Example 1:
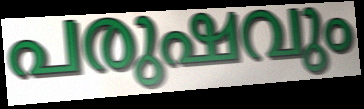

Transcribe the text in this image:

പരുഷവും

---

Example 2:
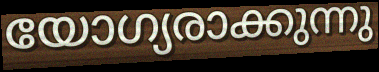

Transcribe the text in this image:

യോഗ്യരാക്കുന്നു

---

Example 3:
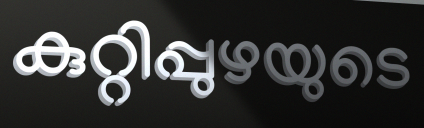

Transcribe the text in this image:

കുറ്റിപ്പുഴയുടെ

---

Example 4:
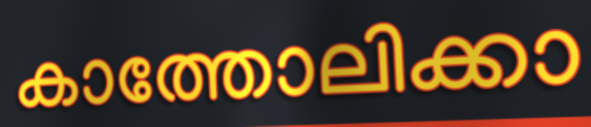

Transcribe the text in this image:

കാത്തോലിക്കാ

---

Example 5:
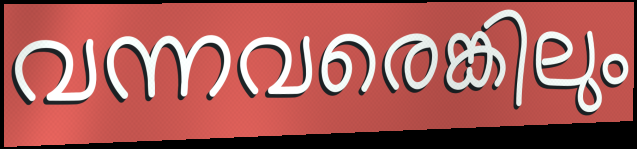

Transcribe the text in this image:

വന്നവരെങ്കിലും